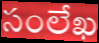
సంలేఖ